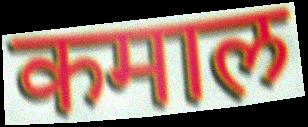
कमाल